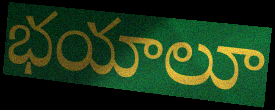
భయాలూ